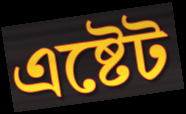
এষ্টেট